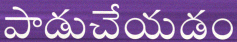
పాడుచేయడం